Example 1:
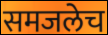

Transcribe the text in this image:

समजलेच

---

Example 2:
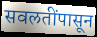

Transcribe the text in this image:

सवलतींपासून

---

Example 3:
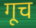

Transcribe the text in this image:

गूच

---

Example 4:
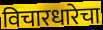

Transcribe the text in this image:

विचारधारेचा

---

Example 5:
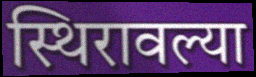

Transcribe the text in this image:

स्थिरावल्या